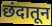
छंदातून